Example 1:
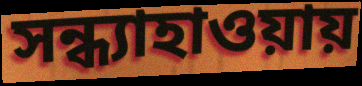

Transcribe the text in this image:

সন্ধ্যাহাওয়ায়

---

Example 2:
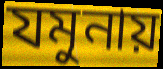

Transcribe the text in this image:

যমুনায়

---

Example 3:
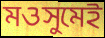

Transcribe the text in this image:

মওসুমেই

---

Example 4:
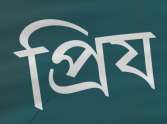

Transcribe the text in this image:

প্রিয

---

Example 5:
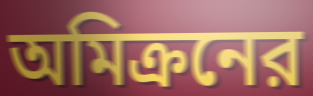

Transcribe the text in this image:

অমিক্রনের